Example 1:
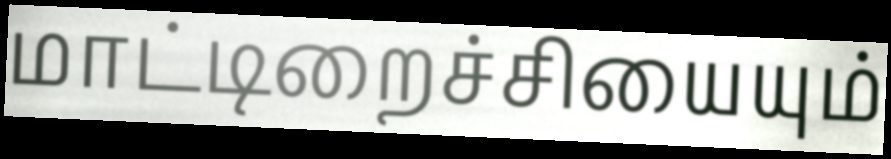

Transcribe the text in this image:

மாட்டிறைச்சியையும்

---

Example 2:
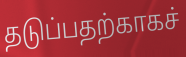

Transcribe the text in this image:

தடுப்பதற்காகச்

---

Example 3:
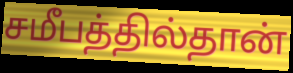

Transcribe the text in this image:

சமீபத்தில்தான்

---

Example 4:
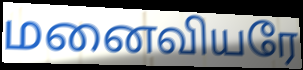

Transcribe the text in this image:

மனைவியரே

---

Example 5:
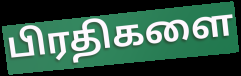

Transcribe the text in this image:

பிரதிகளை